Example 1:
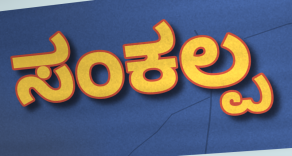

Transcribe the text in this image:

ಸಂಕಲ್ಪ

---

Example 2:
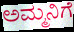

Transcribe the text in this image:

ಅಮ್ಮನಿಗೆ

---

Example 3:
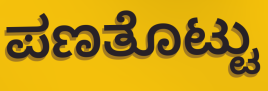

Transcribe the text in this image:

ಪಣತೊಟ್ಟು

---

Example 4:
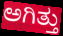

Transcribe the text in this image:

ಅಗಿತ್ತು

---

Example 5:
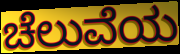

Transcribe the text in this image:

ಚೆಲುವೆಯ